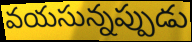
వయసున్నప్పుడు